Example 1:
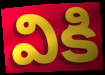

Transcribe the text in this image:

వికి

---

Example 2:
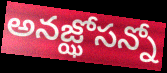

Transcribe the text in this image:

అనజ్ఝోసన్నో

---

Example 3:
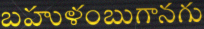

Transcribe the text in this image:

బహుళంబుగానగు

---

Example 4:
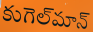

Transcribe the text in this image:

కుగెల్‌మాన్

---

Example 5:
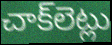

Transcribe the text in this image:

చాక్‌లెట్లు